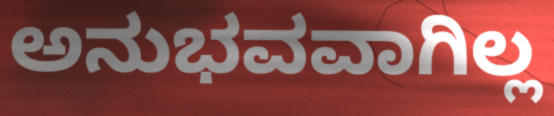
ಅನುಭವವಾಗಿಲ್ಲ